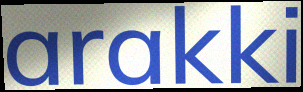
arakki